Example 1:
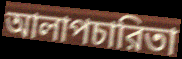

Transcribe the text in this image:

আলাপচারিতা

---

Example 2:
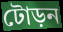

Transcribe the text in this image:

টোড়ন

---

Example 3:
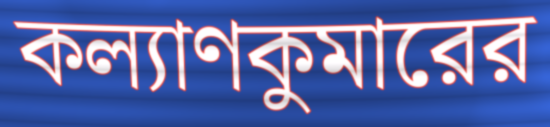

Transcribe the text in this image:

কল্যাণকুমারের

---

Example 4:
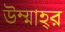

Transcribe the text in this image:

উম্মাহ্‌র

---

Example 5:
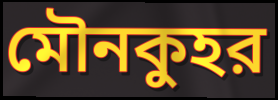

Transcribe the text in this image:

মৌনকুহর